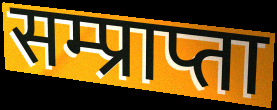
सम्प्राप्ता